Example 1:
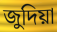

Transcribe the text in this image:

জুদিয়া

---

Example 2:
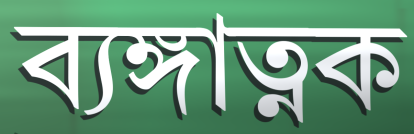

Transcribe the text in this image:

ব্যঙ্গাত্নক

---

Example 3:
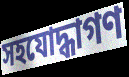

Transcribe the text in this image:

সহযোদ্ধাগণ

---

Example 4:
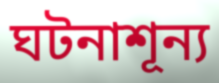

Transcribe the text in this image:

ঘটনাশূন্য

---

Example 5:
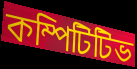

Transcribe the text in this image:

কম্পিটিটিভ